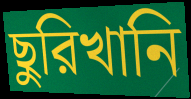
ছুরিখানি